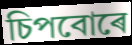
চিপবোৰে